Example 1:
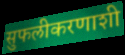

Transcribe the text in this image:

सुफलीकरणाशी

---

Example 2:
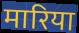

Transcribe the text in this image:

मारिया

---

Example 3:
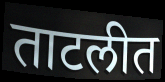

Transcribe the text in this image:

ताटलीत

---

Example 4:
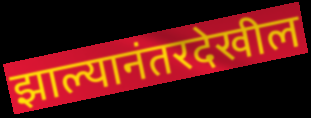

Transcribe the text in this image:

झाल्यानंतरदेखील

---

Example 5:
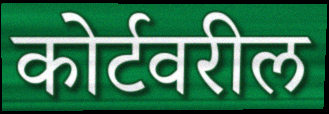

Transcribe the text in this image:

कोर्टवरील